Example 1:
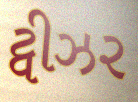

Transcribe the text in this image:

ટ્વીઝર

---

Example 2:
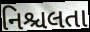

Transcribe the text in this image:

નિશ્ચલતા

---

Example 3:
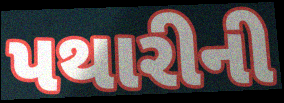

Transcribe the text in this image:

પથારીની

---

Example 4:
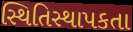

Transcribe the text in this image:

સ્થિતિસ્થાપકતા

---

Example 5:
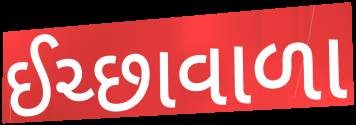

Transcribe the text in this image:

ઈચ્છાવાળા